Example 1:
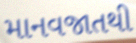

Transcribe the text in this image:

માનવજાતથી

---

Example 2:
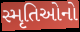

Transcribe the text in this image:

સ્મૃતિઓનો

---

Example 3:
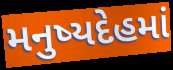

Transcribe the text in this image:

મનુષ્યદેહમાં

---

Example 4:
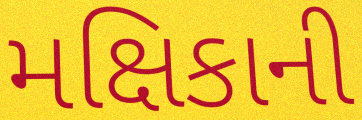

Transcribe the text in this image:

મક્ષિકાની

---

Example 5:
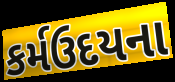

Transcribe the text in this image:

કર્મઉદયના